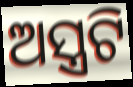
ଅସ୍ତ୍ରଟି